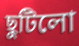
ছুটিলো